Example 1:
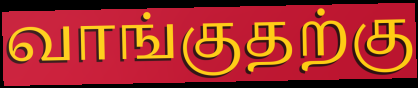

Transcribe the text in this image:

வாங்குதற்கு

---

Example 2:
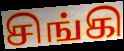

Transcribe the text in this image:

சிங்கி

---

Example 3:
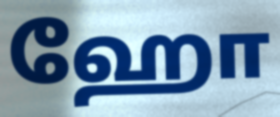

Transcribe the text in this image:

ஹோ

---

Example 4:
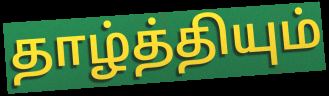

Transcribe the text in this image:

தாழ்த்தியும்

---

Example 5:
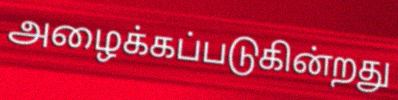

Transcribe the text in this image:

அழைக்கப்படுகின்றது